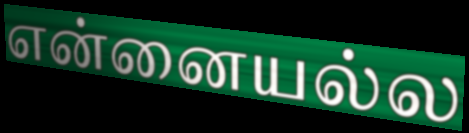
என்னையல்ல